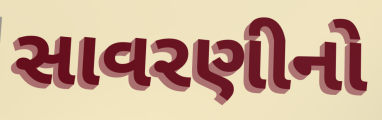
સાવરણીનો